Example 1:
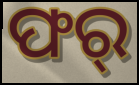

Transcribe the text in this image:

ଫର୍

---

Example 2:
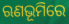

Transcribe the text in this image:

ଋଣଭୂମିରେ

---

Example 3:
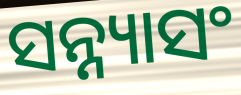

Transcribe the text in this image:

ସନ୍ନ୍ୟାସଂ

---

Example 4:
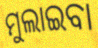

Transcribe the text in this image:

ମୁଲାଇବା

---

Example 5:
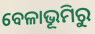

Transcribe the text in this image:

ବେଳାଭୂମିରୁ